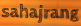
sahajrang